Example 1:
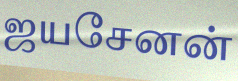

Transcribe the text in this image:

ஜயசேனன்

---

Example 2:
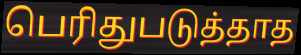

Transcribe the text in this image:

பெரிதுபடுத்தாத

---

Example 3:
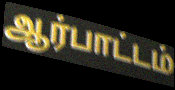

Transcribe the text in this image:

ஆர்பாட்டம்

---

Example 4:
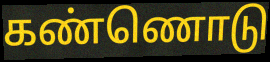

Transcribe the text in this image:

கண்ணொடு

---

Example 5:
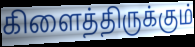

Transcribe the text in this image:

கிளைத்திருக்கும்